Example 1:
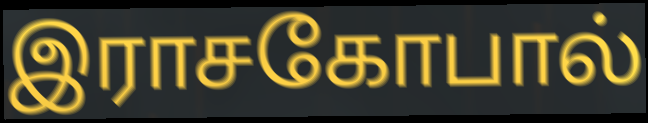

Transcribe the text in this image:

இராசகோபால்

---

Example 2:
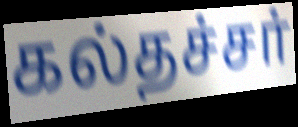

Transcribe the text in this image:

கல்தச்சர்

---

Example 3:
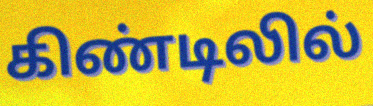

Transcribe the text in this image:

கிண்டிலில்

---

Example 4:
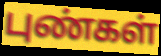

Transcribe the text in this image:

புண்கள்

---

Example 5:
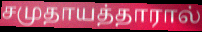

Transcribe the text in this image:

சமுதாயத்தாரால்